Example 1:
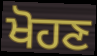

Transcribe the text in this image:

ਖੋਹਣ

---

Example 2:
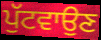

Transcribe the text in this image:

ਪੁੱਟਵਾਉਣ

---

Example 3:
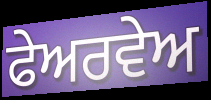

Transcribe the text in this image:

ਫੇਅਰਵੇਅ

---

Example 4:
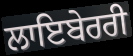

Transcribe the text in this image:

ਲਾਇਬੇਰਰੀ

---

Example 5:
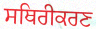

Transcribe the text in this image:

ਸਥਿਰੀਕਰਣ